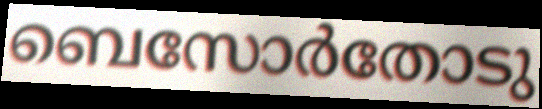
ബെസോർതോടു